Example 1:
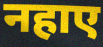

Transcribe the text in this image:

नहाए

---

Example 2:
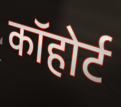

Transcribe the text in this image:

कॉहोर्ट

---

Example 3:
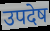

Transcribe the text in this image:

उपदेष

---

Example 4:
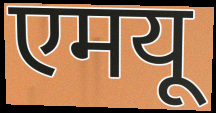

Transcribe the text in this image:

एमयू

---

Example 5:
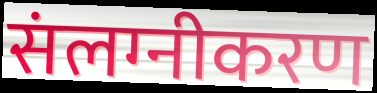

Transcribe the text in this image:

संलग्‍नीकरण